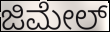
ಜಿಮೇಲ್